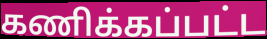
கணிக்கப்பட்ட